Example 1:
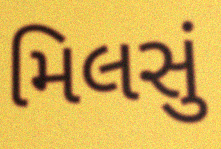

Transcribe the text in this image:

મિલસું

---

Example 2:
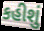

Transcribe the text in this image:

કહીશું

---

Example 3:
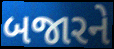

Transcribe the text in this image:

બજારને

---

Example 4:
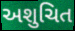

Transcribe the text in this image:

અશુચિત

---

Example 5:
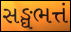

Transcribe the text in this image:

સઙ્ઘભત્તં